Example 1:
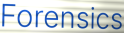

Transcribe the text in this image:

Forensics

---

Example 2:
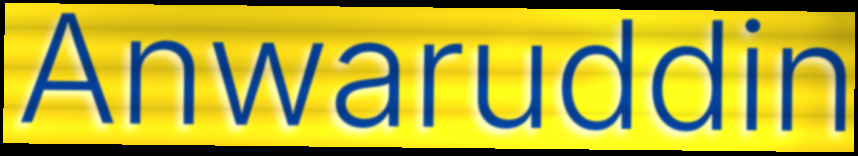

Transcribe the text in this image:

Anwaruddin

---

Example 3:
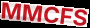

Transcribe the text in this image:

MMCFS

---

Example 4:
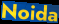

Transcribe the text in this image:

Noida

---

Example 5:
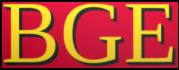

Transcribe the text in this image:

BGE